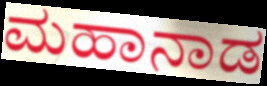
ಮಹಾನಾಡ